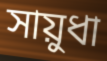
সায়ুধা